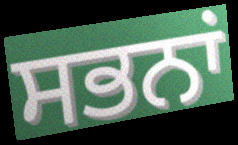
ਸਭਨਾਂ